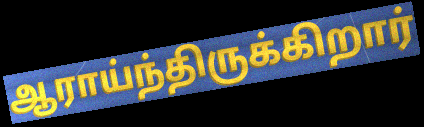
ஆராய்ந்திருக்கிறார்